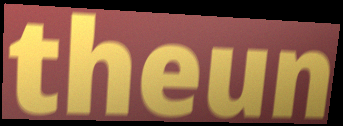
theun